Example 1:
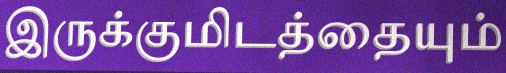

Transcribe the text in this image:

இருக்குமிடத்தையும்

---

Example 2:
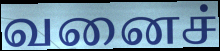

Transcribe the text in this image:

வனைச்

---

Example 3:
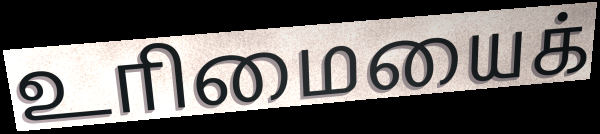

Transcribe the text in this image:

உரிமையைக்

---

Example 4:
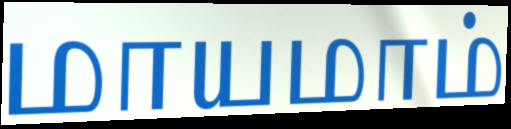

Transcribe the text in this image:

மாயமாம்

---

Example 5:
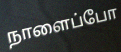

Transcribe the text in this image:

நாளைப்போ